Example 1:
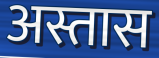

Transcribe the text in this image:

अस्तास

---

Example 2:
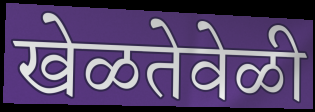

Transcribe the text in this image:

खेळतेवेळी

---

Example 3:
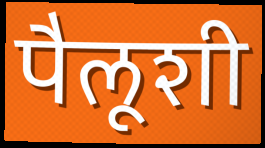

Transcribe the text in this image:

पैलूशी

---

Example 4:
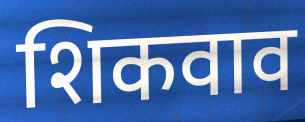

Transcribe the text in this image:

शिकवाव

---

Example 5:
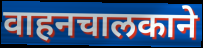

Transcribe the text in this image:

वाहनचालकाने